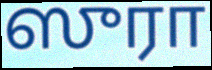
ஸுரா